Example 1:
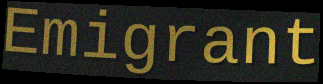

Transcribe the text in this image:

Emigrant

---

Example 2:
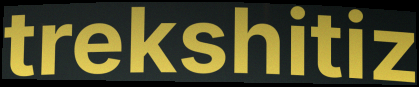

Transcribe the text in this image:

trekshitiz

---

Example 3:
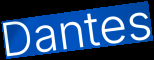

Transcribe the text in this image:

Dantes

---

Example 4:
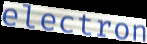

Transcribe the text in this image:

electron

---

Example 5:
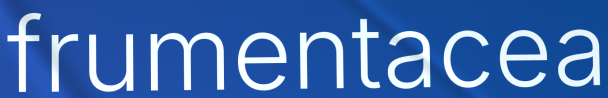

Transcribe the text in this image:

frumentacea